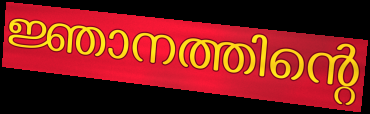
ജ്ഞാനത്തിന്റെ